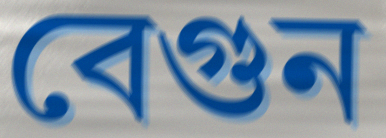
বেগুন